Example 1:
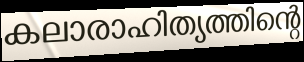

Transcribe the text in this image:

കലാരാഹിത്യത്തിന്റെ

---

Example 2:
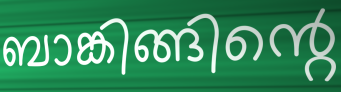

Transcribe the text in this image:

ബാങ്കിങ്ങിന്റെ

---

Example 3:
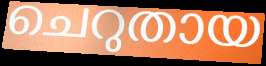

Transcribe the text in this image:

ചെറുതായ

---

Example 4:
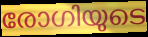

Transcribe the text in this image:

രോഗിയുടെ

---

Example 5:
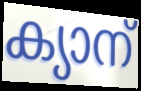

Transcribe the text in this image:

ക്യാന്